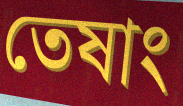
তেষাং